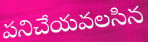
పనిచేయవలసిన